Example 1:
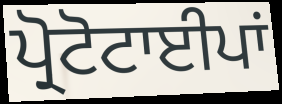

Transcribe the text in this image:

ਪ੍ਰੋਟੋਟਾਈਪਾਂ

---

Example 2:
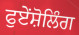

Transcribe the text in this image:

ਫੁਏਂਸ਼ੋਲਿੰਗ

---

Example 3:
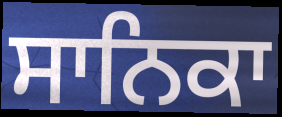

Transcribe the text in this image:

ਸਾਨਿਕਾ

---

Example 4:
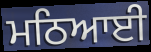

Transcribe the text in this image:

ਮਠਿਆਈ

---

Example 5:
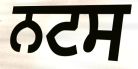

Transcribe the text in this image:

ਨਟਸ